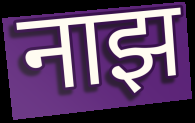
नाझ